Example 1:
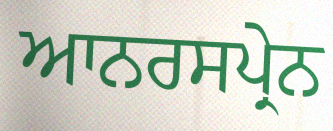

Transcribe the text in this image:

ਆਨਰਸਪ੍ਰੇਨ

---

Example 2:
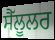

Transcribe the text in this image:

ਸੈੱਲੂਲਰ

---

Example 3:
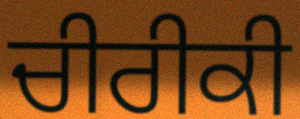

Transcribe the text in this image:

ਚੀਰੀਕੀ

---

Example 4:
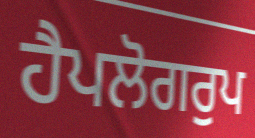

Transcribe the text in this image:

ਹੈਪਲੋਗਰੁਪ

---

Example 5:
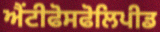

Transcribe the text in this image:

ਐਂਟੀਫੋਸਫੋਲਿਪੀਡ